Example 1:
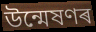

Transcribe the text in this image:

উন্মেষণৰ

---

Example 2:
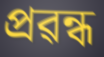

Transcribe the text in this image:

প্ৰৱন্ধ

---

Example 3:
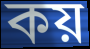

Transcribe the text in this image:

কয়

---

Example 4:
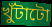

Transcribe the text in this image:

খুঁটাটো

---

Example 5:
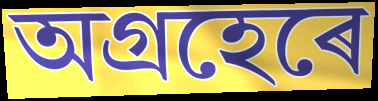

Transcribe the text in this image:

অগ্ৰহেৰে